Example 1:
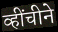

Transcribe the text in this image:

व्हींचीने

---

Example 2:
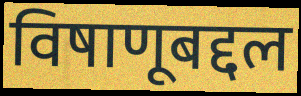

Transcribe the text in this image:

विषाणूबद्दल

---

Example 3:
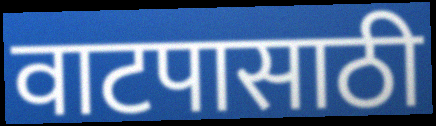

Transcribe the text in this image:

वाटपासाठी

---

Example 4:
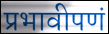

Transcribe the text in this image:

प्रभावीपणं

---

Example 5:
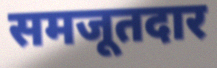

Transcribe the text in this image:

समजूतदार